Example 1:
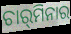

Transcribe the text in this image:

ଚାର୍‌ମିନାର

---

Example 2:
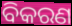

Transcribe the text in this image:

ବିକରଣ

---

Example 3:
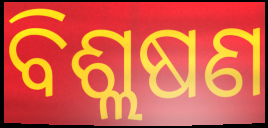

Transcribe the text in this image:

ବିଶ୍ଲଷଣ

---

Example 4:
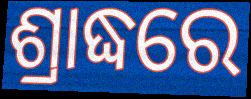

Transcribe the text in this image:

ଶ୍ରାଦ୍ଧରେ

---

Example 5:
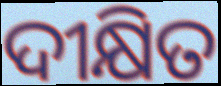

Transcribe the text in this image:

ଦୀକ୍ଷିତ